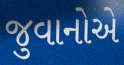
જુવાનોએ